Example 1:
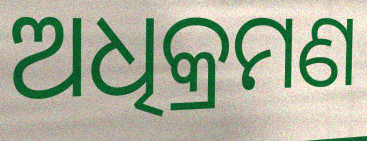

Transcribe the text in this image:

ଅଧିକ୍ରମଣ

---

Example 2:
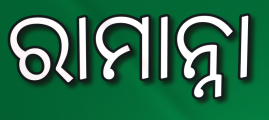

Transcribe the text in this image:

ରାମାନ୍ନା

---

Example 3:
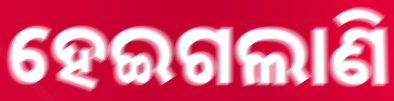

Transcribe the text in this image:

ହେଇଗଲାଣି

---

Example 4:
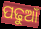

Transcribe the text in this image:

ପଢୁଆଁ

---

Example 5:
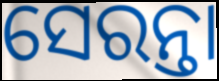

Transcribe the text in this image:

ସେରନ୍ତା